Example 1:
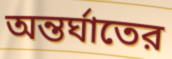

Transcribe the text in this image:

অন্তর্ঘাতের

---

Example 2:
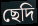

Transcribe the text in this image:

ছেদি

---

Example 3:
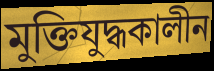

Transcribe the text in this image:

মুক্তিযুদ্ধকালীন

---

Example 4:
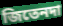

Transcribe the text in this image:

জিতেনদা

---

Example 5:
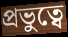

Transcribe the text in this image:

প্রভুত্বে